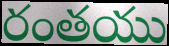
రంతయు